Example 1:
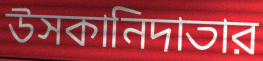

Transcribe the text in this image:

উসকানিদাতার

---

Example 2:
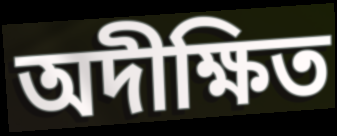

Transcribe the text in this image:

অদীক্ষিত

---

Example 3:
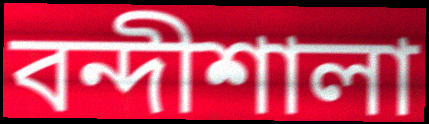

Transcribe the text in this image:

বন্দীশালা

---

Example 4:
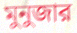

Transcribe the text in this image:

মুনুজার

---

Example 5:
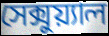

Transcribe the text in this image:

সেক্সুয়্যাল